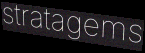
stratagems